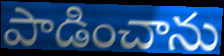
పాడించాను